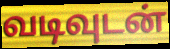
வடிவுடன்